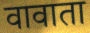
वावाता